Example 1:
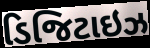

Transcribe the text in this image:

ડિજિટાઇઝ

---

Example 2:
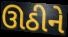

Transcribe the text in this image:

ઊઠીને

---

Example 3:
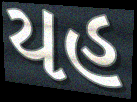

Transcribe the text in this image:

યહ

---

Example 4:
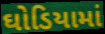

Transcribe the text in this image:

ઘોડિયામાં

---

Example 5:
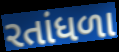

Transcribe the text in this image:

રતાંધળા